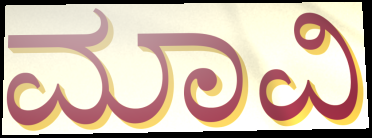
ಮಾವಿ